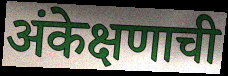
अंकेक्षणाची